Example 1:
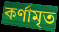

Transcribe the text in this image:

কর্ণামৃত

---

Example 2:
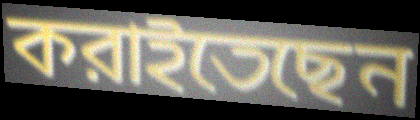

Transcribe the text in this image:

করাইতেছেন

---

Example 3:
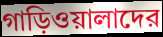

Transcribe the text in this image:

গাড়িওয়ালাদের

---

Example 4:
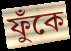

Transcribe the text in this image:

ফুঁকে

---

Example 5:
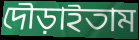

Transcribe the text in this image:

দৌড়াইতাম